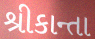
શ્રીકાન્તા